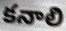
కనాలి